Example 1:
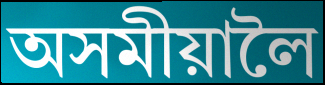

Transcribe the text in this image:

অসমীয়ালৈ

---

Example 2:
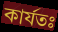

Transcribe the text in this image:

কাৰ্যতঃ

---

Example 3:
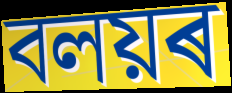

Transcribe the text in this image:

বলয়ৰ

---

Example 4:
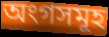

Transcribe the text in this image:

অংগসমূহ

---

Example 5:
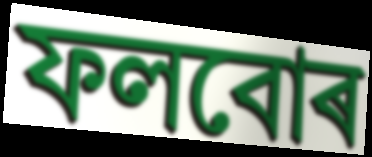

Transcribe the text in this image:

ফলবোৰ